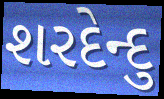
શરદેન્દુ